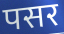
पसर